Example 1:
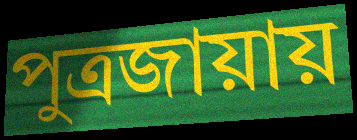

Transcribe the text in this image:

পুত্রজায়ায়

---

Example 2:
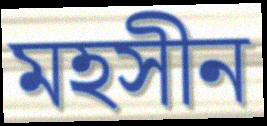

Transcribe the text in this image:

মহসীন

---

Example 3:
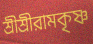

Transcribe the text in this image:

শ্রীশ্রীরামকৃষ্ণ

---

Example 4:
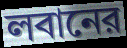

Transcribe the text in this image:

লবানের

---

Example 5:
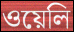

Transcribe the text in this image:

ওয়েলি